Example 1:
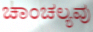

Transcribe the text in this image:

ಚಾಂಚಲ್ಯವು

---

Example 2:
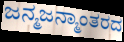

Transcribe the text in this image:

ಜನ್ಮಜನ್ಮಾಂತರದ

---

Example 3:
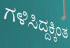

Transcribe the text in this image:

ಗಳಿಸಿದ್ದಕ್ಕಿಂತ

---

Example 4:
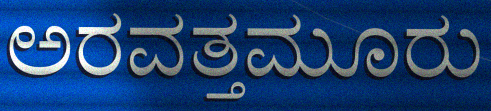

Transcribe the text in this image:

ಅರವತ್ತಮೂರು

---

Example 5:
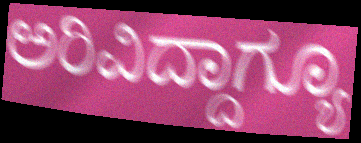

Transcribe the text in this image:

ಅರಿವಿದ್ದಾಗ್ಯೂ